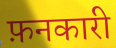
फ़नकारी